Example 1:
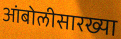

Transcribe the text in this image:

आंबोलीसारख्या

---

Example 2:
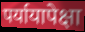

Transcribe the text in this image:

पर्यायापेक्षा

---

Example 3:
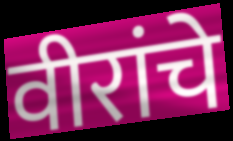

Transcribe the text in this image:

वीरांचे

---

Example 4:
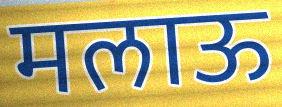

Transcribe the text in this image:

मलाऊ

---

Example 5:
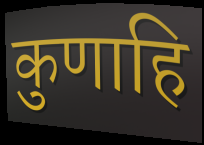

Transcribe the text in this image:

कुणाहि